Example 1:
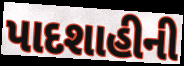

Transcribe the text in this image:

પાદશાહીની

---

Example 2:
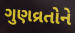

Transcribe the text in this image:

ગુણવ્રતોને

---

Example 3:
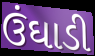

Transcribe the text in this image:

ઉંઘાડી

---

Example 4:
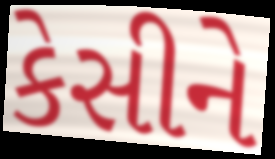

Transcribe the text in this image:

કેસીને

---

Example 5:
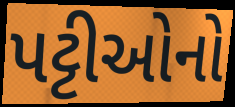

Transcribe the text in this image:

પટ્ટીઓનો